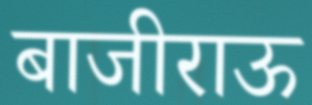
बाजीराऊ